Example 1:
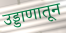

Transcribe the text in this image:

उड्डाणातून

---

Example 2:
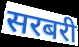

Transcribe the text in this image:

सरबरी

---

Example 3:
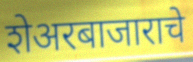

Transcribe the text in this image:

शेअरबाजाराचे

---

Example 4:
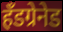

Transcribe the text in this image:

हँडग्रेनेड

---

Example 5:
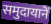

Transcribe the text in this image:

समुदायानें